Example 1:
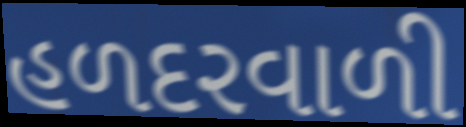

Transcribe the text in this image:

હળદરવાળી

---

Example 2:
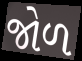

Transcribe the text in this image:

જોળ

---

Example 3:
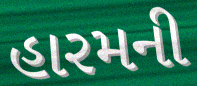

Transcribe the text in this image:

હારમની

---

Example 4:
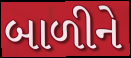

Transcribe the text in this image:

બાળીને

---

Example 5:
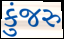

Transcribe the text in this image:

કુંજરુ